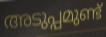
അടുപ്പമുണ്ട്